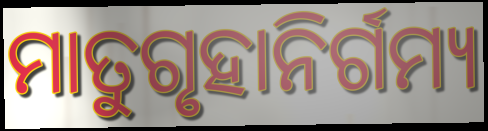
ମାତୁଗୃହାନିର୍ଗମ୍ୟ